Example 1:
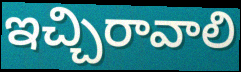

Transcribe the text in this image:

ఇచ్చిరావాలి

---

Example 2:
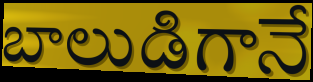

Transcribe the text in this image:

బాలుడిగానే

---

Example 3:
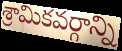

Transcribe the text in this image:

శ్రామికవర్గాన్ని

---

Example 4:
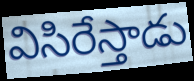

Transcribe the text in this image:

విసిరేస్తాడు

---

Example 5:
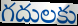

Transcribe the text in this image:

గదులకు